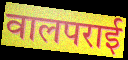
वालपराई